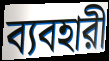
ব্যবহারী